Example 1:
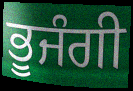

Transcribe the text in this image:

ਭੂਜੰਗੀ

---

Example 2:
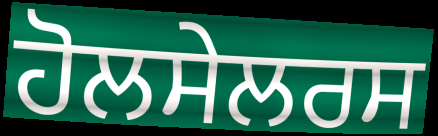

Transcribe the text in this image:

ਹੋਲਸੇਲਰਸ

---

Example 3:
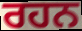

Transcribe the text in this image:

ਰਹਨ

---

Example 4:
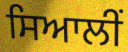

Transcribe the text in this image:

ਸਿਆਲੀਂ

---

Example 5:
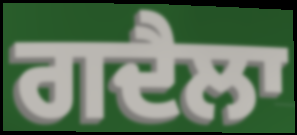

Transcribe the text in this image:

ਗਦੈਲਾ